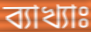
ব্যাখ্যাঃ